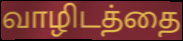
வாழிடத்தை